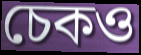
চেকও